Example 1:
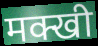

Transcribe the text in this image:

मक्खी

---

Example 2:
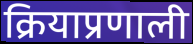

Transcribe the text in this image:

क्रियाप्रणाली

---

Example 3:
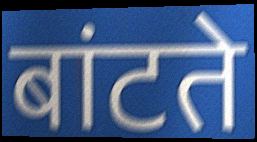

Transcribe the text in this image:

बांटते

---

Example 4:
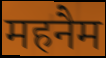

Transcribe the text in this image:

महनैम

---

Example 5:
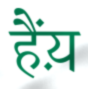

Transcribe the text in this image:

हैंय़